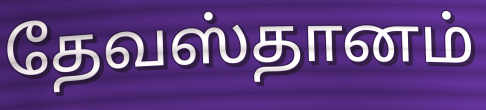
தேவஸ்தானம்